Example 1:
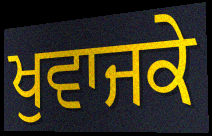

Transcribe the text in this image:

ਖੁਵਾਜਕੇ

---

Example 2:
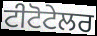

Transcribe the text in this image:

ਟੀਟੋਟੇਲਰ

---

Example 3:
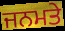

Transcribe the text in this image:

ਜਨਮਤੇ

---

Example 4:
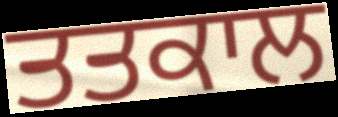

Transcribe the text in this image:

ਤਤਕਾਲ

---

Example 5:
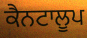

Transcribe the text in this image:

ਕੈਨਟਾਲੂਪ